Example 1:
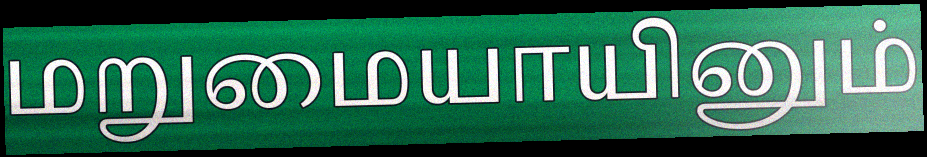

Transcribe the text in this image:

மறுமையாயினும்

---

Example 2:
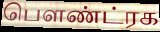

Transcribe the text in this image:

பௌண்ட்ரக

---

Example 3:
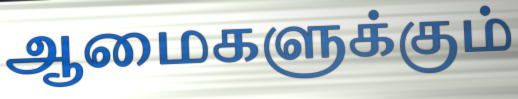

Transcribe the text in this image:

ஆமைகளுக்கும்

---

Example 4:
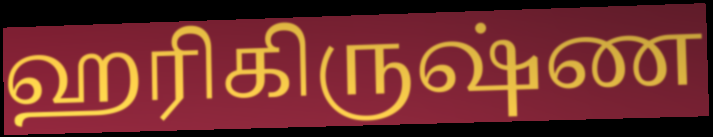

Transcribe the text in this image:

ஹரிகிருஷ்ண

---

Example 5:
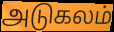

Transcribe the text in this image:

அடுகலம்